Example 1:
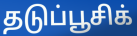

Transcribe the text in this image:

தடுப்பூசிக்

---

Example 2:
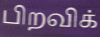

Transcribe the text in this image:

பிறவிக்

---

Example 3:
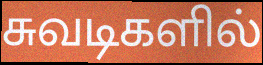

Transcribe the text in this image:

சுவடிகளில்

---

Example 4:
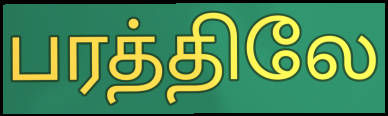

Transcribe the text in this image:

பரத்திலே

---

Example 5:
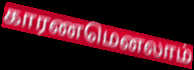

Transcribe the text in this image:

காரணமெனலாம்